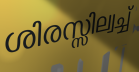
ശിരസ്സില്വച്ച്